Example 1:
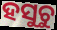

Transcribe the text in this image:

ହସୁଚୁ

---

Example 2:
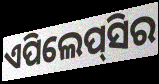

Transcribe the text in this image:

ଏପିଲେପ୍‌ସିର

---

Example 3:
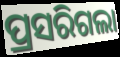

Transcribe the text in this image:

ପ୍ରସରିଗଲା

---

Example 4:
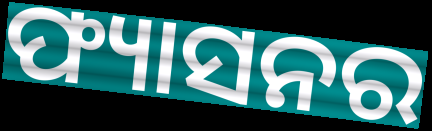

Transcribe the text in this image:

ଫ୍ୟାସନର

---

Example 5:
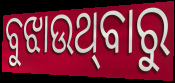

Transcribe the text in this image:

ବୁଝାଉଥ୍‌ବାରୁ